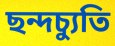
ছন্দচ্যুতি